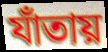
যাঁতায়